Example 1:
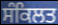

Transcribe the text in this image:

ਸੰਕਿਲਤ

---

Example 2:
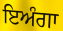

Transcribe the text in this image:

ਇਅੰਗਾ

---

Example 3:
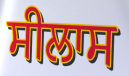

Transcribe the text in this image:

ਸੀਲਾਸ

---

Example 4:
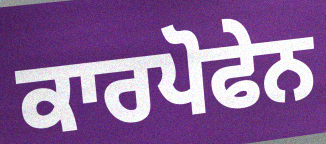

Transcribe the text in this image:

ਕਾਰਪੋਫੇਨ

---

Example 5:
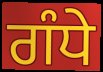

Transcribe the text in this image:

ਗੰਧੇ